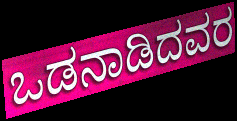
ಒಡನಾಡಿದವರ